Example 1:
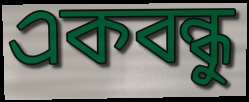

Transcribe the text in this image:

একবন্ধু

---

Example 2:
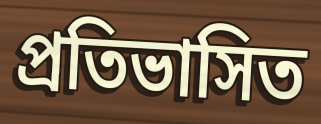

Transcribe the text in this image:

প্রতিভাসিত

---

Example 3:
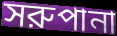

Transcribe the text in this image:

সরুপানা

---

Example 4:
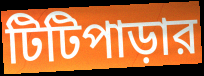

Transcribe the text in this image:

টিটিপাড়ার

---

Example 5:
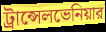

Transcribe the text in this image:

ট্রান্সেলভেনিয়ার